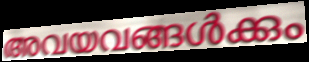
അവയവങ്ങൾക്കും